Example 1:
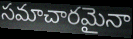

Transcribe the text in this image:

సమాచారమైనా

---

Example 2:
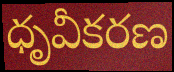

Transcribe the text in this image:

ధృవీకరణ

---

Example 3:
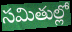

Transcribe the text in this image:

సమితుల్లో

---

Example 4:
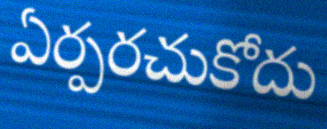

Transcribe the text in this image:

ఏర్పరచుకోదు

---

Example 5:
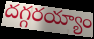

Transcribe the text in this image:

దగ్గరయ్యాం